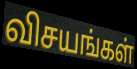
விசயங்கள்